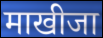
माखीजा